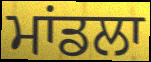
ਮਾਂਡਲਾ